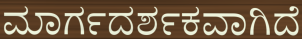
ಮಾರ್ಗದರ್ಶಕವಾಗಿದೆ